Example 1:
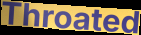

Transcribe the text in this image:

Throated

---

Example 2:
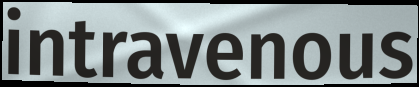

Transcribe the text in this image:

intravenous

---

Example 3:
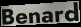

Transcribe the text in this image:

Benard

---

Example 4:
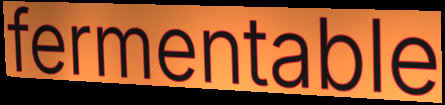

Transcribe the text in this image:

fermentable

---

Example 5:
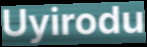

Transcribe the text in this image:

Uyirodu